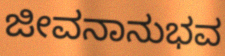
ಜೀವನಾನುಭವ